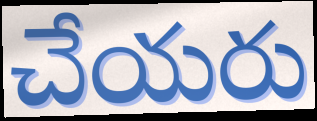
చేయరు